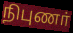
நிபுணர்